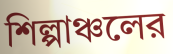
শিল্পাঞ্চলের